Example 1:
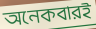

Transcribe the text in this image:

অনেকবারই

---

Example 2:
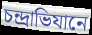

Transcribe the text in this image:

চন্দ্রাভিযানে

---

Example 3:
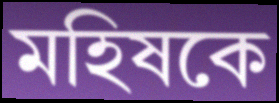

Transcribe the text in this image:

মহিষকে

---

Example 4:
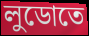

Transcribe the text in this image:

লুডোতে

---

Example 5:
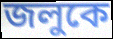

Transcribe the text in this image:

জলুকে